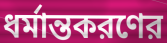
ধর্মান্তকরণের